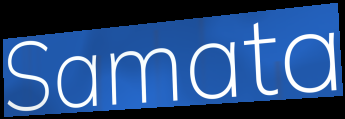
Samata